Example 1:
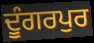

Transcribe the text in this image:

ਦੂੰਗਰਪੁਰ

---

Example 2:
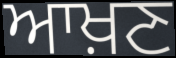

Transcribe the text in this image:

ਆਖ਼ਣ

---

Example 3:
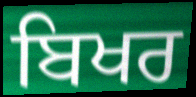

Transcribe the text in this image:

ਬਿਖਰ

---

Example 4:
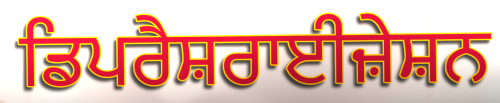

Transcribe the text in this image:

ਡਿਪਰੈਸ਼ਰਾਈਜ਼ੇਸ਼ਨ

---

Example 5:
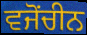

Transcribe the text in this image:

ਵਜੋਂਚੀਨ